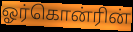
ஓர்கொன்ரின்